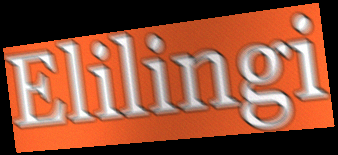
Elilingi